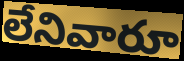
లేనివారూ